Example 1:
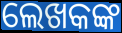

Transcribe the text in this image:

ଲେଖକଙ୍କ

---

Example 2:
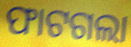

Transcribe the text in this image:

ଫାଟଗଲା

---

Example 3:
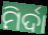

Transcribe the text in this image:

ମିର୍ଦା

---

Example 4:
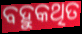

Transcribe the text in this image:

ବହୁକଥିତ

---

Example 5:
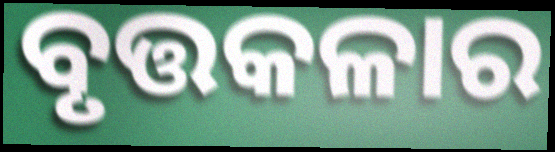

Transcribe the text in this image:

ବୃତ୍ତକଳାର